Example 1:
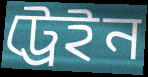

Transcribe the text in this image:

ট্ৰেইন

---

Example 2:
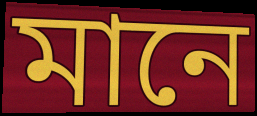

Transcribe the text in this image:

মানে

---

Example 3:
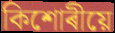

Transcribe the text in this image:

কিশোৰীয়ে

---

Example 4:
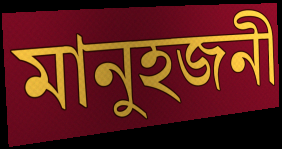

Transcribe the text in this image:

মানুহজনী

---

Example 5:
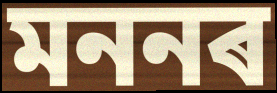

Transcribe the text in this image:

মননৰ